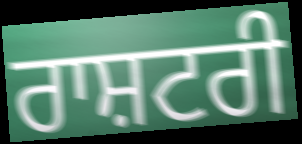
ਰਾਸ਼ਟਰੀ